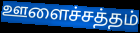
ஊளைச்சத்தம்